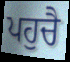
ਪਹੁਚੈ